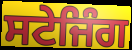
ਸਟੇਜਿੰਗ